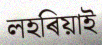
লহৰিয়াই